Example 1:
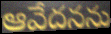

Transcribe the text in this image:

ఆవేదనను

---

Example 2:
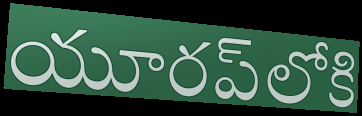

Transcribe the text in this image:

యూరప్‌లోకి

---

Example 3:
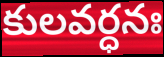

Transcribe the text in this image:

కులవర్ధనః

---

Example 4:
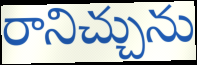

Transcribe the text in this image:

రానిచ్చును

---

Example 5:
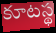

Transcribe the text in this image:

కూటస్థ